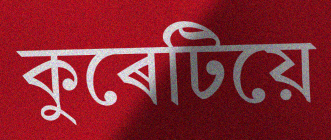
কুৰেটিয়ে